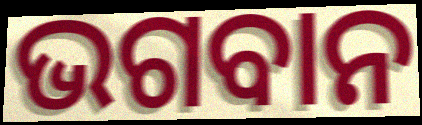
ଭଗବାନ